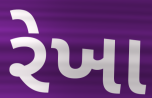
રેખા